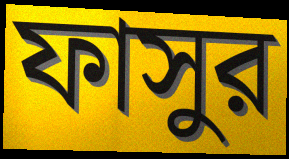
ফাসুর